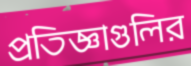
প্রতিজ্ঞাগুলির